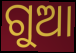
ଗୁଆ